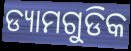
ଡ୍ୟାମଗୁଡିକ